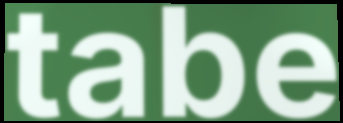
tabe